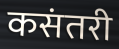
कसंतरी